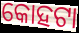
କୋହଟା